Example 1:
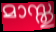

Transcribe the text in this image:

മാസ്തു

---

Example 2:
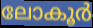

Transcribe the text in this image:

ലോകൂർ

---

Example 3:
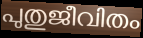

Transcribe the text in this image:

പുതുജീവിതം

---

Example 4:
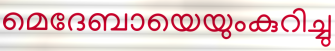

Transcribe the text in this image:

മെദേബായെയുംകുറിച്ചു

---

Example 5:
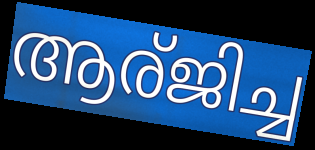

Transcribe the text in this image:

ആര്ജിച്ച